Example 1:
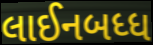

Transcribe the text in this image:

લાઈનબધ્ધ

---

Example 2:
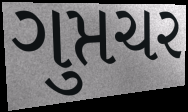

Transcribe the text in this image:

ગુપ્તચર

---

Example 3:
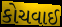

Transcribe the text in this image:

કોચવાઈ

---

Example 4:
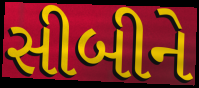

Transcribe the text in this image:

સીબીને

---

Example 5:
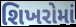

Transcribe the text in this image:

શિખરોમાં